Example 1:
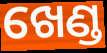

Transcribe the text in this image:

ଖେଣ୍ଡ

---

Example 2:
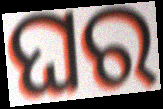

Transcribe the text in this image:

ଘର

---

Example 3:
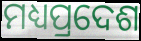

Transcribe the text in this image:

ମଧ୍ୟପ୍ରଦେଶ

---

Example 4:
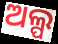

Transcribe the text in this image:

ଅଲ୍ପ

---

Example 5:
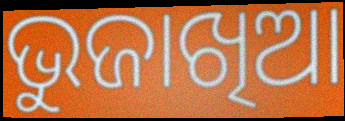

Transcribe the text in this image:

ଭୁଜାଖିଆ